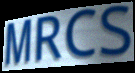
MRCS